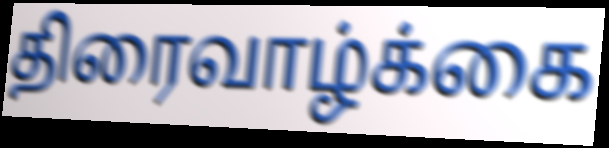
திரைவாழ்க்கை